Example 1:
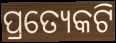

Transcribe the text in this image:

ପ୍ରତ୍ୟେକଟି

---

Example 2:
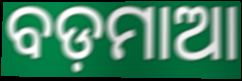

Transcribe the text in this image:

ବଡ଼ମାଆ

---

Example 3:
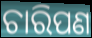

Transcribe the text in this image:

ଚାରିପଣ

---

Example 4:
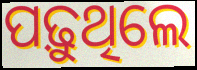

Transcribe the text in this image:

ପଢ଼ୁଥିଲେ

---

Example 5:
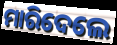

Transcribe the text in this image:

ମାରିଦେଲେ